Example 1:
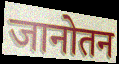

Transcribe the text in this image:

जानोतन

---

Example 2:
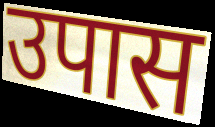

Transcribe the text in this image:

उपास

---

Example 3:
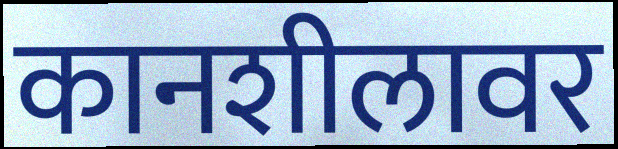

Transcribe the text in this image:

कानशीलावर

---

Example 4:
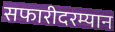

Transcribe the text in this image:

सफारीदरम्यान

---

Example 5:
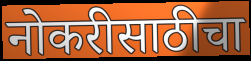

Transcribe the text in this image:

नोकरीसाठीचा